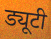
ड्यूटी